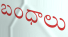
బంధాలు